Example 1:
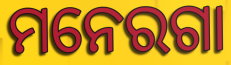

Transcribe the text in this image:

ମନେରଗା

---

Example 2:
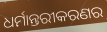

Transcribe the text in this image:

ଧର୍ମାନ୍ତରୀକରଣର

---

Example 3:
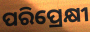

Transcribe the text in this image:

ପରିପ୍ରେକ୍ଷୀ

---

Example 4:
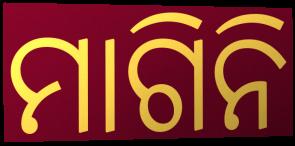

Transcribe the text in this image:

ମାଗିନି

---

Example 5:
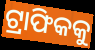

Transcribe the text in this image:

ଟ୍ରାଫିକକୁ